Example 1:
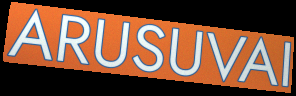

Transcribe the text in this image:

ARUSUVAI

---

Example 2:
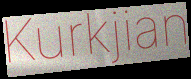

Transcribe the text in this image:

Kurkjian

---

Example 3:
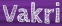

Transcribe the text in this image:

Vakri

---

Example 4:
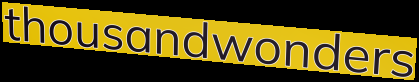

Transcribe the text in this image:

thousandwonders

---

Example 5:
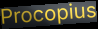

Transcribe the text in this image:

Procopius